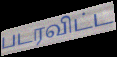
படரவிட்ட